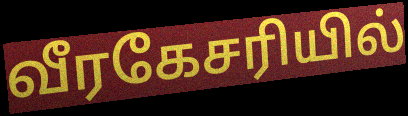
வீரகேசரியில்